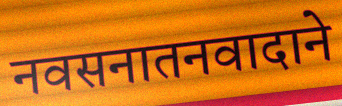
नवसनातनवादाने